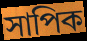
সাপিক